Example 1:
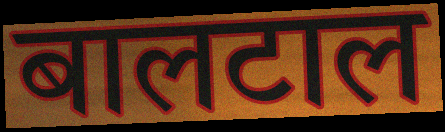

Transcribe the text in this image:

बालटाल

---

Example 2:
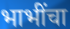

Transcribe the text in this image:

भाभींचा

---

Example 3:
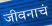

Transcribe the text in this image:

जीवनाचं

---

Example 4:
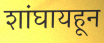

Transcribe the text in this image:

शांघायहून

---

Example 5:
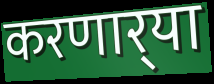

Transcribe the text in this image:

करणार्‍या